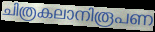
ചിത്രകലാനിരൂപണ